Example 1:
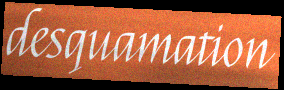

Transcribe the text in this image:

desquamation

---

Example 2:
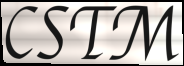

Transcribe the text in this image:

CSTM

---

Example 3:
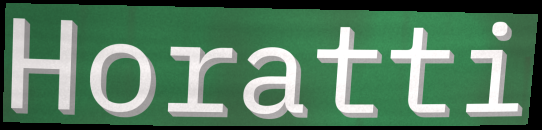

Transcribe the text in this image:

Horatti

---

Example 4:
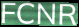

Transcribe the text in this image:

FCNR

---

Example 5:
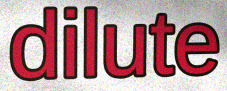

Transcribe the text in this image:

dilute